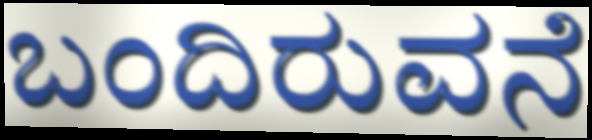
ಬಂದಿರುವನೆ